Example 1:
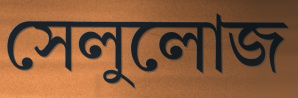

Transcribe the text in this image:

সেলুলোজ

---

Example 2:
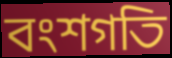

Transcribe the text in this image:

বংশগতি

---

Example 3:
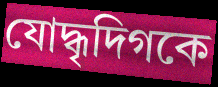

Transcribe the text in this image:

যোদ্ধৃদিগকে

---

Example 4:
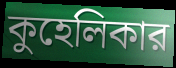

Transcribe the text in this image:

কুহেলিকার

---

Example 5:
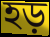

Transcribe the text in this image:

হড়